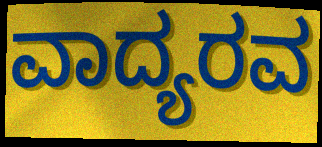
ವಾದ್ಯರವ